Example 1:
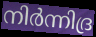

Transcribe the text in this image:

നിർന്നിദ്ര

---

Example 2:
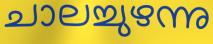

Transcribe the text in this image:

ചാലച്ചുഴന്നു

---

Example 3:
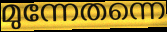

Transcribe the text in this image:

മുന്നേതന്നെ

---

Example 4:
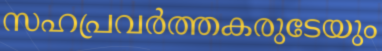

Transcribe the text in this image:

സഹപ്രവർത്തകരുടേയും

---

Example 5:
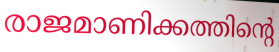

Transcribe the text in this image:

രാജമാണിക്കത്തിന്റെ